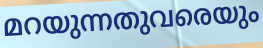
മറയുന്നതുവരെയും